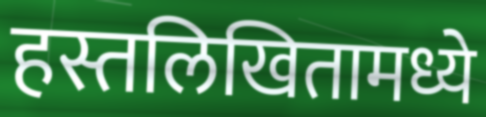
हस्तलिखितामध्ये